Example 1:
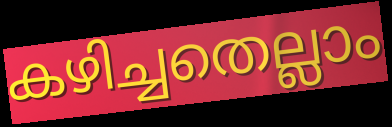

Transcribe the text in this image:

കഴിച്ചതെല്ലാം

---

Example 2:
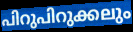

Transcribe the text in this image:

പിറുപിറുക്കലും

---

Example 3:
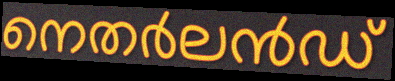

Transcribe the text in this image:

നെതർലൻഡ്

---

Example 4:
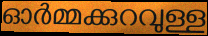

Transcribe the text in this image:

ഓർമ്മക്കുറവുള്ള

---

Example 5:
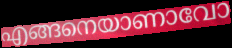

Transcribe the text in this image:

എങ്ങനെയാണാവോ